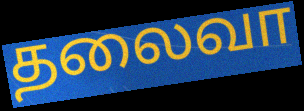
தலைவா